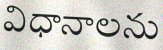
విధానాలను